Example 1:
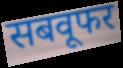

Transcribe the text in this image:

सबवूफर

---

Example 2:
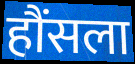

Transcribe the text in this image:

हौंसला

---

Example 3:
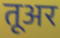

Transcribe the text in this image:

तूअर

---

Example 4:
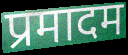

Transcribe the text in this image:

प्रमादम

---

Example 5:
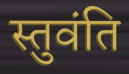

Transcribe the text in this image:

स्तुवंति